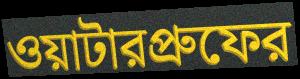
ওয়াটারপ্রুফের